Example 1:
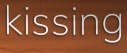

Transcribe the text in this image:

kissing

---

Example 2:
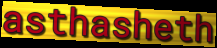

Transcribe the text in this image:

asthasheth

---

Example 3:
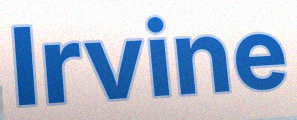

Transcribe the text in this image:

Irvine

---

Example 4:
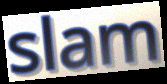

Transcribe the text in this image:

slam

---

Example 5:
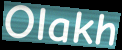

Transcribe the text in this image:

Olakh